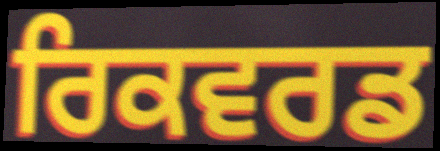
ਰਿਕਵਰਡ